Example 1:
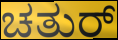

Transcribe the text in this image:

ಚತುರ್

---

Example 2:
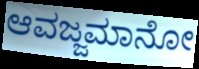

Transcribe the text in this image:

ಆವಜ್ಜಮಾನೋ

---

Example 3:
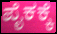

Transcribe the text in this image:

ಪೈಕಕ್ಕೆ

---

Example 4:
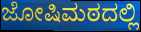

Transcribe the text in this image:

ಜೋಷಿಮಠದಲ್ಲಿ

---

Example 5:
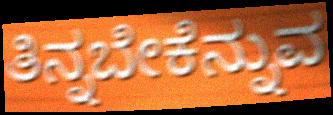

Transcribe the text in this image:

ತಿನ್ನಬೇಕೆನ್ನುವ